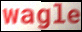
wagle